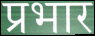
प्रभार